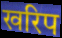
खरिप